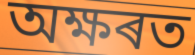
অক্ষৰত